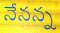
నేనన్న